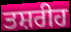
ਤਸ਼ਰੀਹ